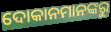
ଦୋକାନମାନଙ୍କରୁ